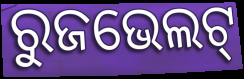
ରୁଜଭେଲଟ୍